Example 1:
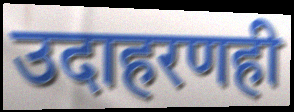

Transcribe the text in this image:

उदाहरणही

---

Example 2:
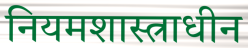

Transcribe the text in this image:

नियमशास्त्राधीन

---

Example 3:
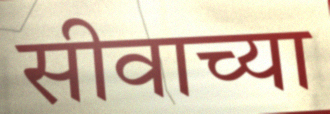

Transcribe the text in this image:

सीवाच्या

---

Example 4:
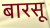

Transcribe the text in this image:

बारसू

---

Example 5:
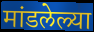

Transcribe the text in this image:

मांडलेल्या